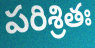
పరిశ్రితః